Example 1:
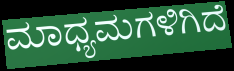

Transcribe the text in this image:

ಮಾಧ್ಯಮಗಳಿಗಿದೆ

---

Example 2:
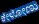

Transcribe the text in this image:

ಕೇಳೋಣು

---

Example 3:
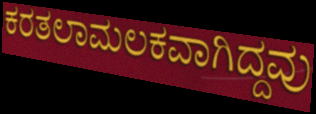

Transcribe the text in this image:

ಕರತಲಾಮಲಕವಾಗಿದ್ದವು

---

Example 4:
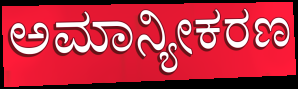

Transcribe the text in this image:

ಅಮಾನ್ಯೀಕರಣ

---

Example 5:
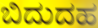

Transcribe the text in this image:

ಬಿದುದಹ